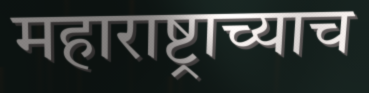
महाराष्ट्राच्याच